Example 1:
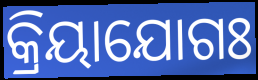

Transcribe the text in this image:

କ୍ରିୟାଯୋଗଃ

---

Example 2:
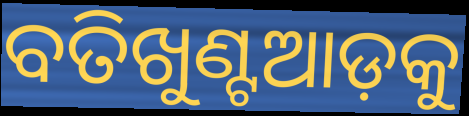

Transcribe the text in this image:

ବତିଖୁଣ୍ଟଆଡ଼କୁ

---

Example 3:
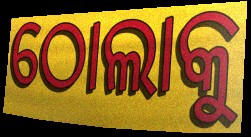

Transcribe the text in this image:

ଠୋଲାକୁ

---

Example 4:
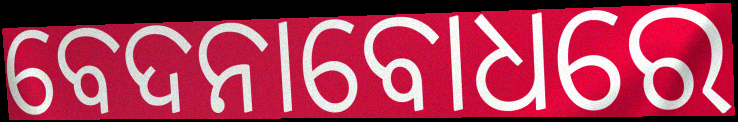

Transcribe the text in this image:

ବେଦନାବୋଧରେ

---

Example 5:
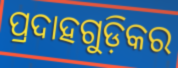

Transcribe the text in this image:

ପ୍ରଦାହଗୁଡ଼ିକର